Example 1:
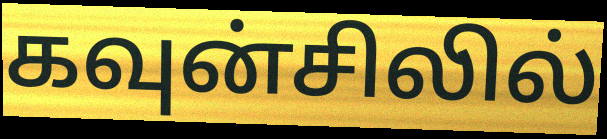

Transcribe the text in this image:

கவுன்சிலில்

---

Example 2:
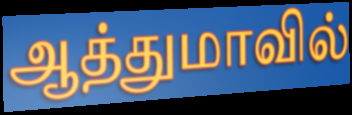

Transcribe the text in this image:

ஆத்துமாவில்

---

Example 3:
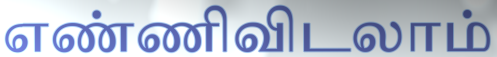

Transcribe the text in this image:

எண்ணிவிடலாம்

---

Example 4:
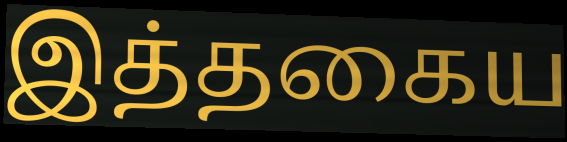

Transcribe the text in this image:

இத்தகைய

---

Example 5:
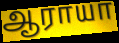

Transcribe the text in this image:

ஆராயா